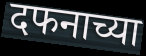
दफनाच्या